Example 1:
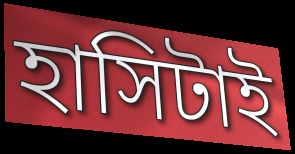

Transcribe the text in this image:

হাসিটাই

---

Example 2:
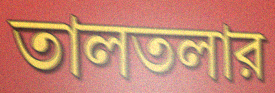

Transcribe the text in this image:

তালতলার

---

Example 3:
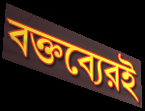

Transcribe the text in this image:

বক্তব্যেরই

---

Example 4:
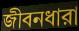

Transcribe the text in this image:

জীবনধারা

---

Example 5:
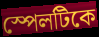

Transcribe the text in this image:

স্পেলটিকে